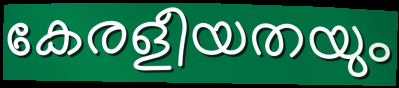
കേരളീയതയും